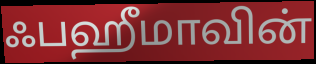
ஃபஹீமாவின்